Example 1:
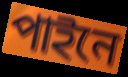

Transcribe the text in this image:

পাইনে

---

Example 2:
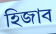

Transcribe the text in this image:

হিজাব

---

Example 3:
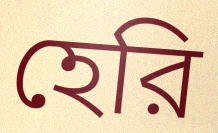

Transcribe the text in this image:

হেরি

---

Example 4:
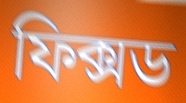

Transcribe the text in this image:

ফিক্সড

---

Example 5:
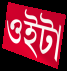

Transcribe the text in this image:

ওইটা